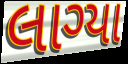
લાગ્યા